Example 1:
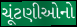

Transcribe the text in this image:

ચૂંટણીઓનો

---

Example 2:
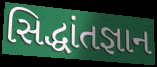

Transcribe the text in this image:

સિદ્ધાંતજ્ઞાન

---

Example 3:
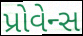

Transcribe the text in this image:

પ્રોવેન્સ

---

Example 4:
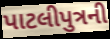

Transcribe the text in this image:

પાટલીપુત્રની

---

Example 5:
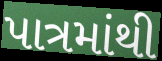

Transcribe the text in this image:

પાત્રમાંથી